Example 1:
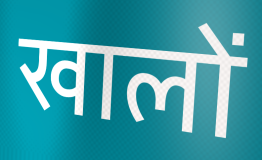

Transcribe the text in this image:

खालों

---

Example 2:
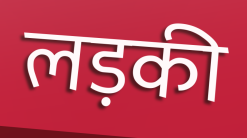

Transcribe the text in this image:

लड़की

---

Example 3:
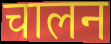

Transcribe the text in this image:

चालन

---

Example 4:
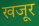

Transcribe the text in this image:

खजूर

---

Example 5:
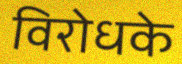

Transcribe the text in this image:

विरोधके